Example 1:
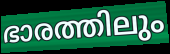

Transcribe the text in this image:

ഭാരത്തിലും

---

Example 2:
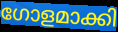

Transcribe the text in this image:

ഗോളമാക്കി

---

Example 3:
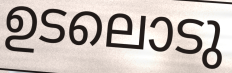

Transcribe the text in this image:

ഉടലൊടു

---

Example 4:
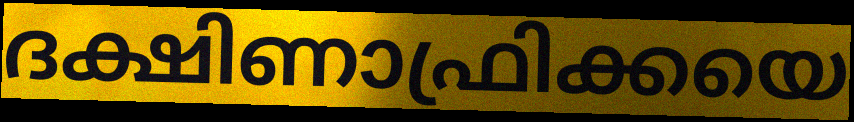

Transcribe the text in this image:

ദക്ഷിണാഫ്രിക്കയെ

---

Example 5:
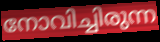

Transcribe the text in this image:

നോവിച്ചിരുന്ന